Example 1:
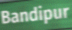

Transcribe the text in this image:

Bandipur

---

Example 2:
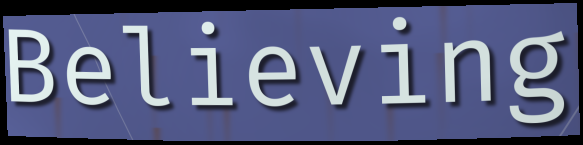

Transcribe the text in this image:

Believing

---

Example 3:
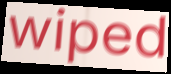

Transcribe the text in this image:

wiped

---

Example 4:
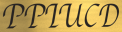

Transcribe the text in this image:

PPIUCD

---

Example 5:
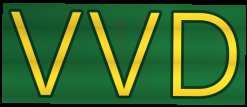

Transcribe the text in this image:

VVD